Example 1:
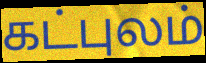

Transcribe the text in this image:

கட்புலம்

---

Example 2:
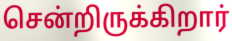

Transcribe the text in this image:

சென்றிருக்கிறார்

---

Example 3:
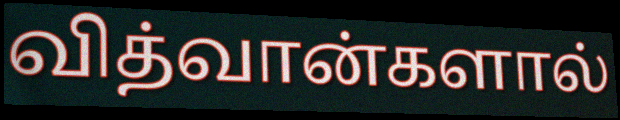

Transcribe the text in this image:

வித்வான்களால்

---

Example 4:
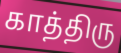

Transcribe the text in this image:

காத்திரு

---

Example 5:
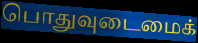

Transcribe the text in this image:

பொதுவுடைமைக்